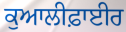
ਕੁਆਲੀਫ਼ਾਈਰ